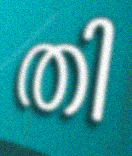
തി